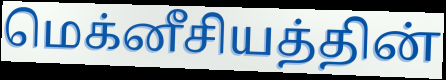
மெக்னீசியத்தின்